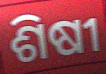
ଶିଷୀ